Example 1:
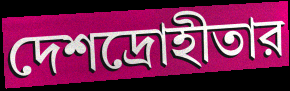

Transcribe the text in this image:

দেশদ্রোহীতার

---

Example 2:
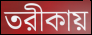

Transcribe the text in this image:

তরীকায়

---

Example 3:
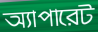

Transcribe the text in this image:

অ্যাপারেট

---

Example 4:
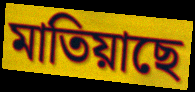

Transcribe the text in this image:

মাতিয়াছে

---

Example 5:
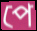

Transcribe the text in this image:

পে